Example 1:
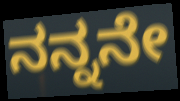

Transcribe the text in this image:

ನನ್ನನೇ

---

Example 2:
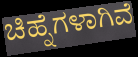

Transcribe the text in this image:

ಚಿಹ್ನೆಗಳಾಗಿವೆ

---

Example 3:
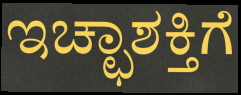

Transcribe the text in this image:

ಇಚ್ಛಾಶಕ್ತಿಗೆ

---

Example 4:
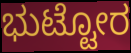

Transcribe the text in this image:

ಭುಟ್ಟೋರ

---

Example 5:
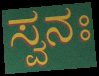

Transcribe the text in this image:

ಸ್ವನಃ